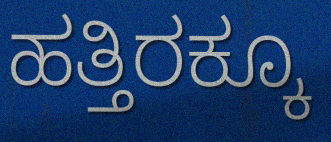
ಹತ್ತಿರಕ್ಕೂ